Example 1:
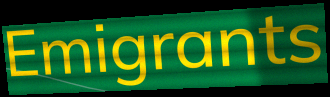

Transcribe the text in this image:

Emigrants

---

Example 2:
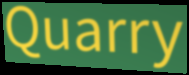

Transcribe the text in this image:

Quarry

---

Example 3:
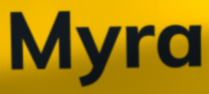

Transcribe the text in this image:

Myra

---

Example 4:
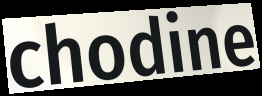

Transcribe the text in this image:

chodine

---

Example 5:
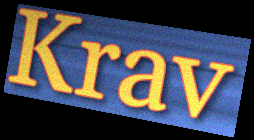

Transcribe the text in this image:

Krav